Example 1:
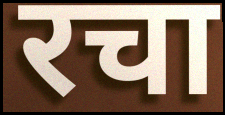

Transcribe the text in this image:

रचा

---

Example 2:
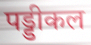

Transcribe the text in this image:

पड्डीकल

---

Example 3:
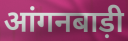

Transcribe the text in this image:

आंगनबाड़ी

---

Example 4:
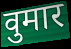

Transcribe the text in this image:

वुमार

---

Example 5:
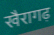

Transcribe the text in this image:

खैरागढ़